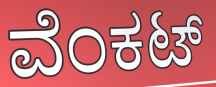
ವೆಂಕಟ್